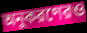
অনুকরণেরও